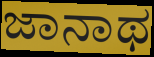
ಜಾನಾಥ